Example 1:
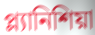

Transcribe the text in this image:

প্ল্যানিশিয়া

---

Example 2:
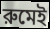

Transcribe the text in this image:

রুমেই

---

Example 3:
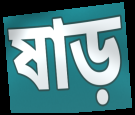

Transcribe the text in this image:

ষাড়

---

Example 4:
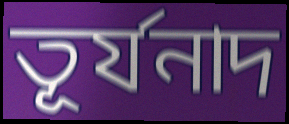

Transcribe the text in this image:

তূর্যনাদ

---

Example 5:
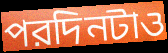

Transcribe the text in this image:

পরদিনটাও